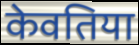
केवतिया